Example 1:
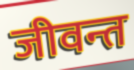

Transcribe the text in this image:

जीवन्त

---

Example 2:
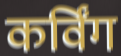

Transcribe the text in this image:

कर्विंग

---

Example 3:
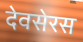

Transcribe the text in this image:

देवसेरस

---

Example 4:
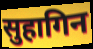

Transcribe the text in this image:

सुहागिन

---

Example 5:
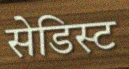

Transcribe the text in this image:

सेडिस्ट